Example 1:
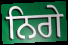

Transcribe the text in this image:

ਨਿਗੇ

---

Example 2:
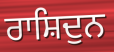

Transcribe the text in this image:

ਰਾਸ਼ਿਦੁਨ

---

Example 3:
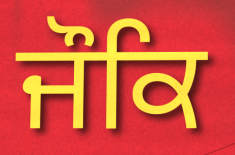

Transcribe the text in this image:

ਜੌਕਿ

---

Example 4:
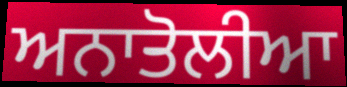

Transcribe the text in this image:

ਅਨਾਤੋਲੀਆ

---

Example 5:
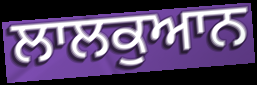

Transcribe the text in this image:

ਲਾਲਕੁਆਨ